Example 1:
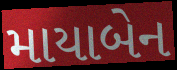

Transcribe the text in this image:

માયાબેન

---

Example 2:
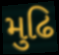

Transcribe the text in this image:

મુઢિ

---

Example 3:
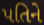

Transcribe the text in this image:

પતિને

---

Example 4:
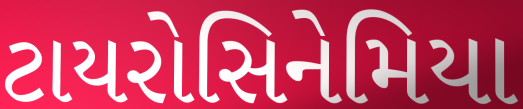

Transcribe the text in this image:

ટાયરોસિનેમિયા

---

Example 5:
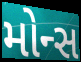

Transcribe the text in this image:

મોન્સ